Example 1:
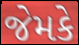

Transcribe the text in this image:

જેમકે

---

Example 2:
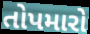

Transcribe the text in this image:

તોપમારો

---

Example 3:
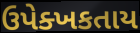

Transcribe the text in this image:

ઉપેક્ખકતાય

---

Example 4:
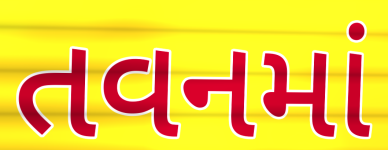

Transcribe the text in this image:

તવનમાં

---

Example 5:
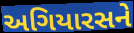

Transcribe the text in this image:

અગિયારસને